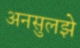
अनसुलझे